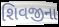
શિવજીના